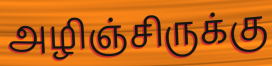
அழிஞ்சிருக்கு